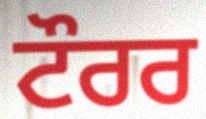
ਟੌਰਰ